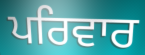
ਪਰਿਵਾਰ